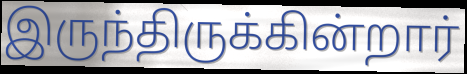
இருந்திருக்கின்றார்